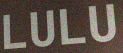
LULU